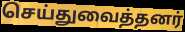
செய்துவைத்தனர்